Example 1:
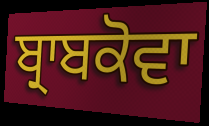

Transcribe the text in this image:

ਬ੍ਰਾਬਕੋਵਾ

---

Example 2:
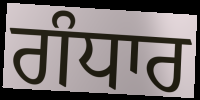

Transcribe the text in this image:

ਗੰਧਾਰ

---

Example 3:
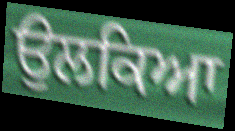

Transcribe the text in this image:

ਉਲਕਿਆ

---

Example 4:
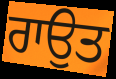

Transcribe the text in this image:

ਰਾਉਤ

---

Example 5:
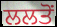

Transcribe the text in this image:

ਲਲਤੋਂ